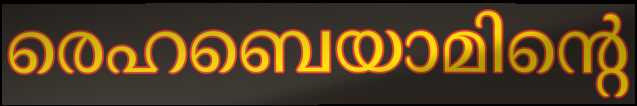
രെഹബെയാമിന്റെ